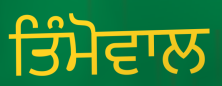
ਤਿੰਮੋਵਾਲ